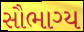
સૌભાગ્ય